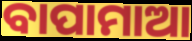
ବାପାମାଆ